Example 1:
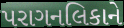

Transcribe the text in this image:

પરાગનલિકાને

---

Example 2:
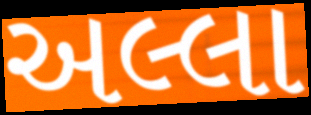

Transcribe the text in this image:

અલ્લા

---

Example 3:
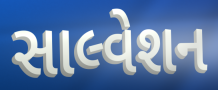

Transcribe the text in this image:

સાલ્વેશન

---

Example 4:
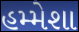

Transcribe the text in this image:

હમ્મેશા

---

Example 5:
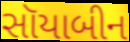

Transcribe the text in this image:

સૉયાબીન